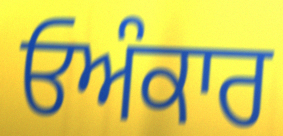
ਓਅੰਕਾਰ